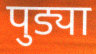
पुड्या